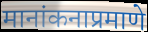
मानांकनाप्रमाणे